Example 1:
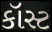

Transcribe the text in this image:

કૉસ્ટ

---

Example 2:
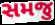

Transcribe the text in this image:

સમજુ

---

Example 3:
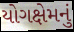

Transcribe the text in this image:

યોગક્ષેમનું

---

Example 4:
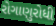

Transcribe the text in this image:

રોગાણુરોધી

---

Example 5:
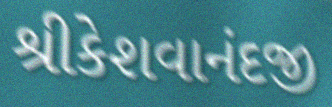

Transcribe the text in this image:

શ્રીકેશવાનંદજી